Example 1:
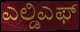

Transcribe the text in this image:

ಎಲ್ಡಿಎಫ್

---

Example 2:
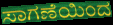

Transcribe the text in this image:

ಸಾಗಣೆಯಿಂದ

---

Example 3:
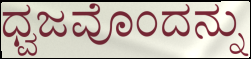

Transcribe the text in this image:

ಧ್ವಜವೊಂದನ್ನು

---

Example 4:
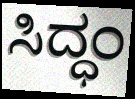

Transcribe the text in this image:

ಸಿದ್ಧಂ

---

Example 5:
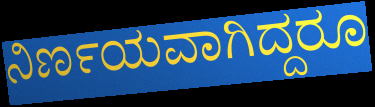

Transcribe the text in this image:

ನಿರ್ಣಯವಾಗಿದ್ದರೂ